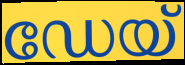
ഡേയ്